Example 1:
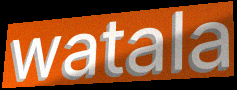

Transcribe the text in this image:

watala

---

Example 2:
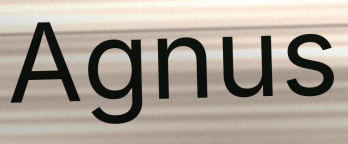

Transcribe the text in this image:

Agnus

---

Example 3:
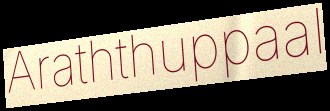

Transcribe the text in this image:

Araththuppaal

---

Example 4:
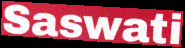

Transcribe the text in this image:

Saswati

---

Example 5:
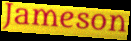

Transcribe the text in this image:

Jameson